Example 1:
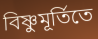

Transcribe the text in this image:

বিষ্ণুমূর্তিতে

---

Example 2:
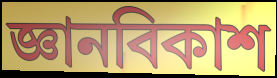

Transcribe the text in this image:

জ্ঞানবিকাশ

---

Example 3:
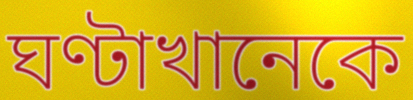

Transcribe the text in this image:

ঘণ্টাখানেকে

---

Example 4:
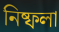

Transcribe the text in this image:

নিষ্ফলা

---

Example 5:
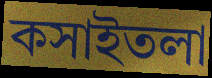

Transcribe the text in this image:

কসাইতলা